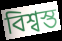
বিশ্বস্ত